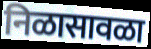
निळासावळा